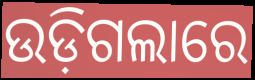
ଉଡ଼ିଗଲାରେ